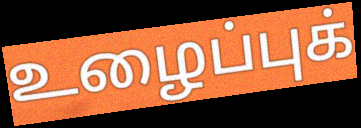
உழைப்புக்